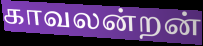
காவலன்றன்